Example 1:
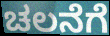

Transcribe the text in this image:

ಚಲನೆಗೆ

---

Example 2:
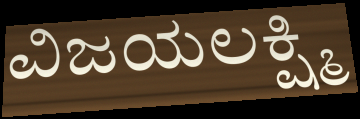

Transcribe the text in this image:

ವಿಜಯಲಕ್ಷ್ಮಿ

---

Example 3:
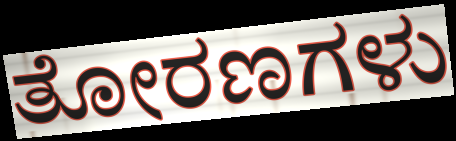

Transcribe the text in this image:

ತೋರಣಗಳು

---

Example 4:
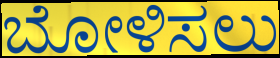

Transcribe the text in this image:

ಬೋಳಿಸಲು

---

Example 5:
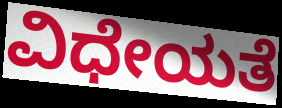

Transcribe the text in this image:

ವಿಧೇಯತೆ